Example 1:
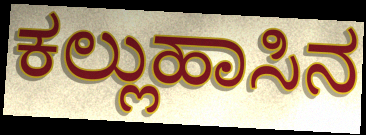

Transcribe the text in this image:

ಕಲ್ಲುಹಾಸಿನ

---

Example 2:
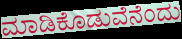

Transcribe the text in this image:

ಮಾಡಿಕೊಡುವೆನೆಂದು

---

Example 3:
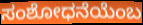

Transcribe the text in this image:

ಸಂಶೋಧನೆಯೆಂಬ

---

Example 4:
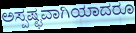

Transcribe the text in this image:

ಅಸ್ಪಷ್ಟವಾಗಿಯಾದರೂ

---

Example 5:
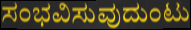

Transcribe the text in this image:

ಸಂಭವಿಸುವುದುಂಟು